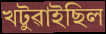
খটুৱাইছিল